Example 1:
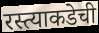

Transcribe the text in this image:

रस्त्याकडेची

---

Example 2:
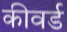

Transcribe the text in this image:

कीवर्ड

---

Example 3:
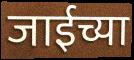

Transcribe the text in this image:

जाईच्या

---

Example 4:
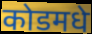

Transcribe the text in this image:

कोडमधे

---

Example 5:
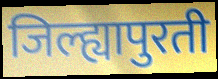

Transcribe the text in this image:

जिल्ह्यापुरती